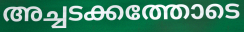
അച്ചടക്കത്തോടെ